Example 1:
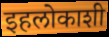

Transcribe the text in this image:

इहलोकाशी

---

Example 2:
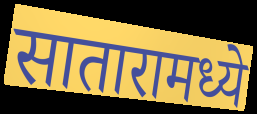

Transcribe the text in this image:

सातारामध्ये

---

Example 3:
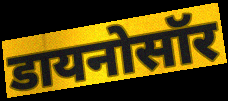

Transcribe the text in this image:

डायनोसॉर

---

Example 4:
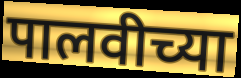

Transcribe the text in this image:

पालवीच्या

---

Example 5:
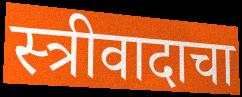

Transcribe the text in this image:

स्त्रीवादाचा